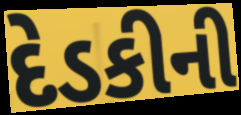
દેડકીની